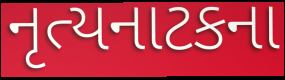
નૃત્યનાટકના